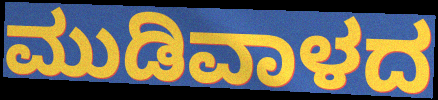
ಮುಡಿವಾಳದ